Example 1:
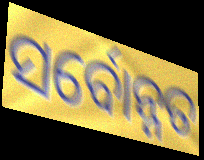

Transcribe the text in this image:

ସର୍ବୋନ୍ନତ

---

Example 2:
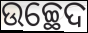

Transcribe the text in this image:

ଉଚ୍ଛେଦ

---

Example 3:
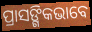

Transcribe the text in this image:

ପ୍ରାସଙ୍ଗିକଭାବେ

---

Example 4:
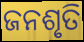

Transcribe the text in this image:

ଜନଶୃତି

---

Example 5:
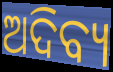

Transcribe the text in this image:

ଅଦିବ୍ୟ